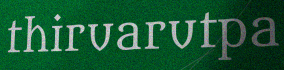
thiruarutpa